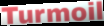
Turmoil